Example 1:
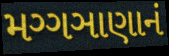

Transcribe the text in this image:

મગ્ગઞાણાનં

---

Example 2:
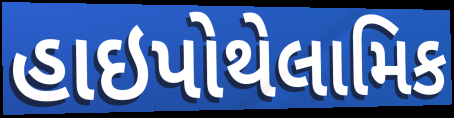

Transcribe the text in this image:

હાઇપોથેલામિક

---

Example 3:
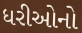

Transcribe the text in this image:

ધરીઓનો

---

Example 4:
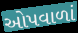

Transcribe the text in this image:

ઓપવાળાં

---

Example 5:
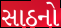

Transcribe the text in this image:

સાઠનો